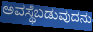
ಅವಸ್ಥೆಬಡುವುದನು